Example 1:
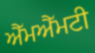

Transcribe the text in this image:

ਐੱਮਐੱਮਟੀ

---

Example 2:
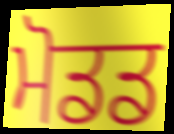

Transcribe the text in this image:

ਮੋਡਡ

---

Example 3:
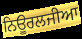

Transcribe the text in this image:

ਨਿਊਰਲਜੀਆ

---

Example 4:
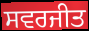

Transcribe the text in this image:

ਸਵਰਜੀਤ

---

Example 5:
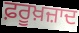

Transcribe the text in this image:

ਫ਼ਰੂਖ਼ਜ਼ਾਦ